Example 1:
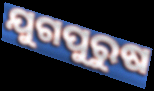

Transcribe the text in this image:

ଯୁଗପୁରୁଷ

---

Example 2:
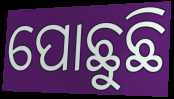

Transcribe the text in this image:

ପୋଛୁଛି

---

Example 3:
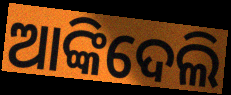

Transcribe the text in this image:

ଆଙ୍କିଦେଲି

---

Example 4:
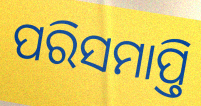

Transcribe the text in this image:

ପରିସମାପ୍ତି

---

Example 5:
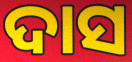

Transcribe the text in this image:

ଦାସ